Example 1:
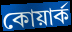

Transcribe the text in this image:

কোয়ার্ক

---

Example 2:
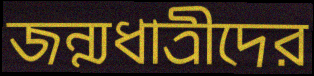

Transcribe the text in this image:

জন্মধাত্রীদের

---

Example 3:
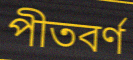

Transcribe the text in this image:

পীতবর্ণ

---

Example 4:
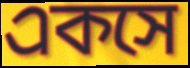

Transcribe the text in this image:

একসে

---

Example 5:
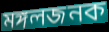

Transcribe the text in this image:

মঙ্গলজনক